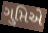
ગુપ્તિએ